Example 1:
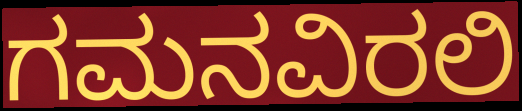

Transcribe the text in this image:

ಗಮನವಿರಲಿ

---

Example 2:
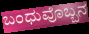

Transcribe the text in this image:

ಬಂಧುವೊಬ್ಬನ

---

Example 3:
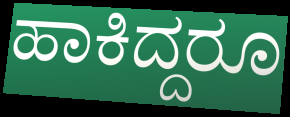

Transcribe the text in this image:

ಹಾಕಿದ್ದರೂ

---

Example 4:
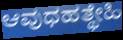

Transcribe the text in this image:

ಆವುಧಹತ್ಥೇಹಿ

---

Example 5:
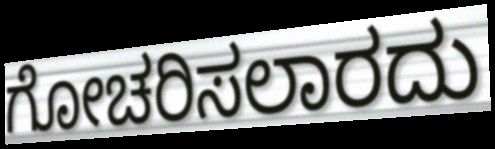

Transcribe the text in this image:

ಗೋಚರಿಸಲಾರದು